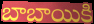
బాబాయికి